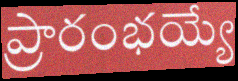
ప్రారంభయ్యే